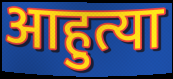
आहुत्या